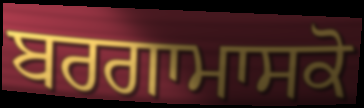
ਬਰਗਾਮਾਸਕੋ